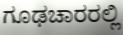
ಗೂಢಚಾರರಲ್ಲಿ